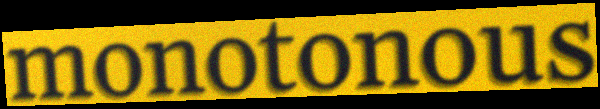
monotonous